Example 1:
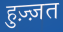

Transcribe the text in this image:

हुज़्ज़त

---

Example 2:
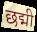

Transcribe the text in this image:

छद्मी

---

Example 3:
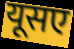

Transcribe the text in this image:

यूसए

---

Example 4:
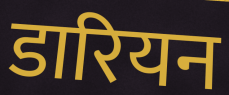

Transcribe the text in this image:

डारियन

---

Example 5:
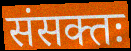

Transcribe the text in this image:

संसक्तः